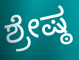
ಶ್ರೇಷ್ಠ